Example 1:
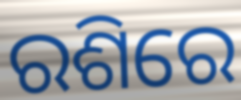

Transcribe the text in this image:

ରଶିରେ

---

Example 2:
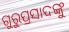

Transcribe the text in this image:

ଗୁରୁପ୍ରସାଦଙ୍କୁ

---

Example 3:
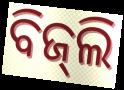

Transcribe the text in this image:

ବିଜ୍‍ଲି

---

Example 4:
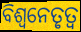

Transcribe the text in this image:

ବିଶ୍ୱନେତୃତ୍ୱ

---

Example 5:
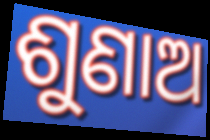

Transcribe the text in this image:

ଶୁଣାଅ